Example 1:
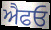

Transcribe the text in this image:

ਐਫਓ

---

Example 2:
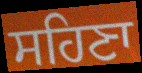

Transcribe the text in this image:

ਸਹਿਣਾ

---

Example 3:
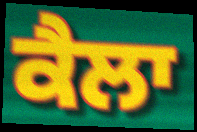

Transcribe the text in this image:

ਕੈਲਾ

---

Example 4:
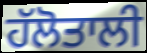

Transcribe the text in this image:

ਹੱਲੋਤਾਲੀ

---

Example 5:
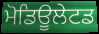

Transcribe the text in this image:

ਮੋਡਿਊਲੇਟਡ